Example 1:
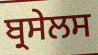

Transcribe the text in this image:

ਬ੍ਰਸੇਲਸ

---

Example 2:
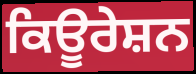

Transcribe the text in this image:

ਕਿਊਰੇਸ਼ਨ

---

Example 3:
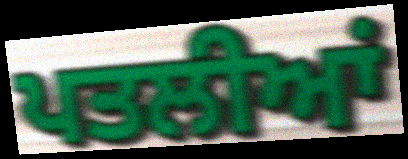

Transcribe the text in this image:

ਪਤਲੀਆਂ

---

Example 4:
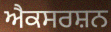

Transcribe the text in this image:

ਐਕਸਰਸ਼ਨ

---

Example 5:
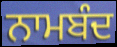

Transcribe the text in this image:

ਨਾਮਬੰਦ